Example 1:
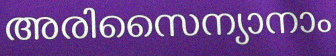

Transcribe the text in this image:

അരിസൈന്യാനാം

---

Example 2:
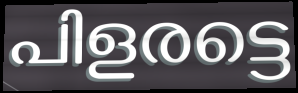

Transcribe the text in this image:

പിളരട്ടെ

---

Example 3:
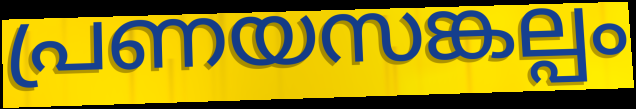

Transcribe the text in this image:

പ്രണയസങ്കല്പം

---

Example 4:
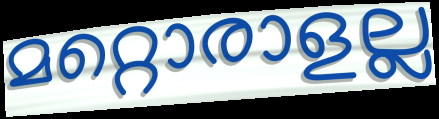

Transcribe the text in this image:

മറ്റൊരാളല്ല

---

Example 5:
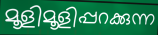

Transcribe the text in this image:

മൂളിമൂളിപ്പറക്കുന്ന